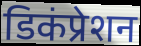
डिकंप्रेशन